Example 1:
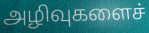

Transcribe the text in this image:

அழிவுகளைச்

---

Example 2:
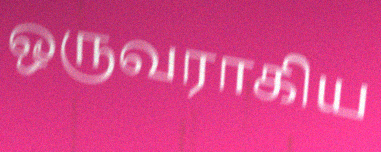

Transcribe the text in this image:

ஒருவராகிய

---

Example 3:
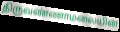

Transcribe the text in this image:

திருவண்ணாமலையின்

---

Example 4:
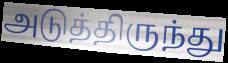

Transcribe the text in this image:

அடுத்திருந்து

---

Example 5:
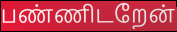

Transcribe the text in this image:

பண்ணிடறேன்